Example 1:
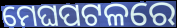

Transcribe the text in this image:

ମେଘପଟଳରେ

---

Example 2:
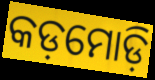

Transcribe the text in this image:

କଡ଼ମୋଡ଼ି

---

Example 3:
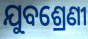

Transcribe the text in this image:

ଯୁବଶ୍ରେଣୀ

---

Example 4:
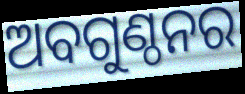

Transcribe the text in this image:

ଅବଗୁଣ୍ଠନର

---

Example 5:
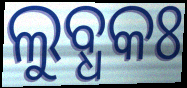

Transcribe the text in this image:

ଲୁବ୍ଧକଃ